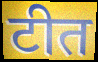
टीत